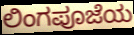
ಲಿಂಗಪೂಜೆಯ